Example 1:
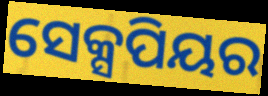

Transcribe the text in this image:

ସେକ୍ସପିୟର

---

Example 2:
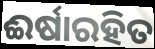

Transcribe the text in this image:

ଈର୍ଷାରହିତ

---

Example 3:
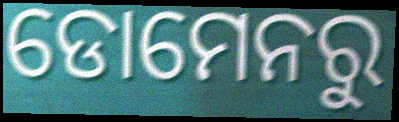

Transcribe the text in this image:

ଡୋମେନରୁ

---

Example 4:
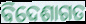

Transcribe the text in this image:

ବିଦେଶାଗତ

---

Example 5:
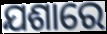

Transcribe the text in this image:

ଯଶାରେ